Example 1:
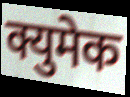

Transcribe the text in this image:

क्युमेक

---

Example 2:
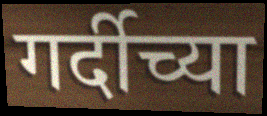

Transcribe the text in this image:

गर्दीच्या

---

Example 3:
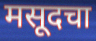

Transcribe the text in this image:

मसूदचा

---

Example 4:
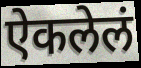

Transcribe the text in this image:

ऐकलेलं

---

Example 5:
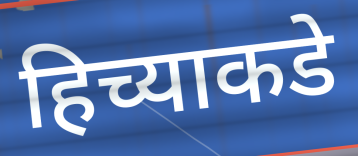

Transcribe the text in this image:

हिच्याकडे